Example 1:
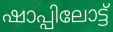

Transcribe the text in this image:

ഷാപ്പിലോട്ട്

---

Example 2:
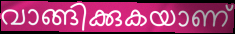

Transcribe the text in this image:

വാങ്ങിക്കുകയാണ്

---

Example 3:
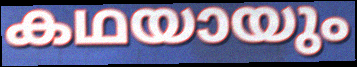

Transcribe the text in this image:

കഥയായും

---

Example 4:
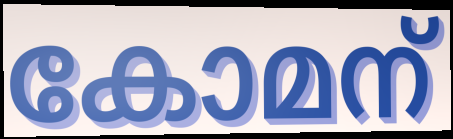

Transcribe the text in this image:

കോമന്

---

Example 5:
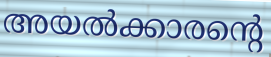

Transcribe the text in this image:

അയൽക്കാരന്റെ